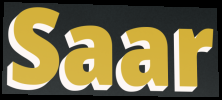
Saar